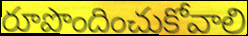
రూపొందించుకోవాలి